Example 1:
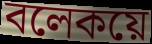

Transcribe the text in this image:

বলেকয়ে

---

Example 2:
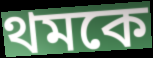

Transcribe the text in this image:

থমকে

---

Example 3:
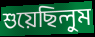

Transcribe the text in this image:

শুয়েছিলুম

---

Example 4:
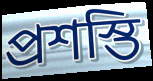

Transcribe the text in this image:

প্রশস্তি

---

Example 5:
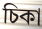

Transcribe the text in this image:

চিকা